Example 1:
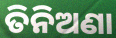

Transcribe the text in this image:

ତିନିଅଣା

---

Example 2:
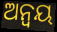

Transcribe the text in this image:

ଅନ୍ଵୟ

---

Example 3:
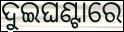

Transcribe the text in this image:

ଦୁଇଘଣ୍ଟାରେ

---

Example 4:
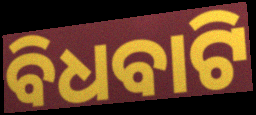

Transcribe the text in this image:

ବିଧବାଟି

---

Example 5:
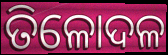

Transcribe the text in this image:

ତିଳୋଦଳ